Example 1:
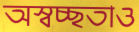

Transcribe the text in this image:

অস্বচ্ছতাও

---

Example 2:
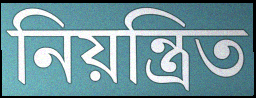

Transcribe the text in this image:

নিয়ন্ত্রিত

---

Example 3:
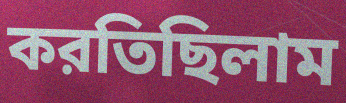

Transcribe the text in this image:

করতিছিলাম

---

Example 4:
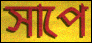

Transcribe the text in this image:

সাপে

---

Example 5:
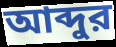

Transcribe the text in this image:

আব্দুর